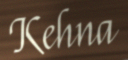
Kehna